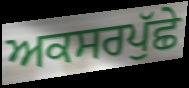
ਅਕਸਰਪੁੱਛੇ